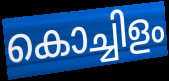
കൊച്ചിളം